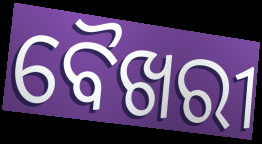
ବୈଖରୀ